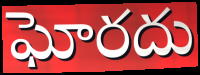
ఘోరదు